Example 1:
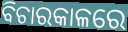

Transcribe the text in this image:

ବିଚାରକାଳରେ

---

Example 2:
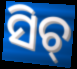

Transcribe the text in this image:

ସିଚ୍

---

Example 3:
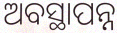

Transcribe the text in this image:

ଅବସ୍ଥାପନ୍ନ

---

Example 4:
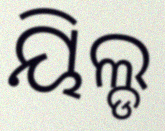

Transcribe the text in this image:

ୟିଲ୍ଡ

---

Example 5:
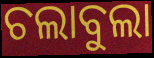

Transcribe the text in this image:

ଚଲାବୁଲା